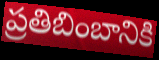
ప్రతిబింబానికి